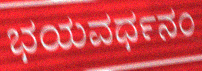
ಭಯವರ್ಧನಂ